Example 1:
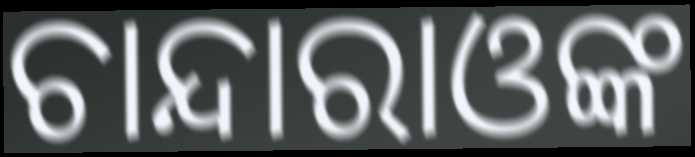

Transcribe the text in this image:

ଚାନ୍ଦାରାଓଙ୍କ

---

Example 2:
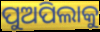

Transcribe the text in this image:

ପୁଅପିଲାକୁ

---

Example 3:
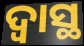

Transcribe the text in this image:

ଦ୍ୱାସ୍ଥ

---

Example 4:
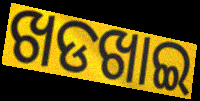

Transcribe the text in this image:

ଖଡଖାଇ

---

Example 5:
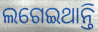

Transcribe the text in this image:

ଲଗେଇଥାନ୍ତି